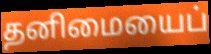
தனிமையைப்